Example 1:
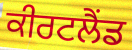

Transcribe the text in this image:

ਕੀਰਟਲੈਂਡ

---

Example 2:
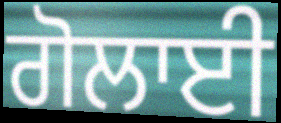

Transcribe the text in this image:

ਗੋਲਾਈ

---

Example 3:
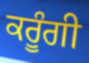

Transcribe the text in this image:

ਕਰੂੰਗੀ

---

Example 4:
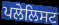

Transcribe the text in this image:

ਪਲੇਲਿਸਟ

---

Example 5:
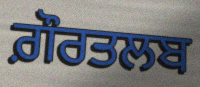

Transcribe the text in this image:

ਗ਼ੌਰਤਲਬ